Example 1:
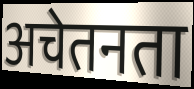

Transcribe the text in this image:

अचेतनता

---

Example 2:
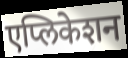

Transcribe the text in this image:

एप्लिकेशन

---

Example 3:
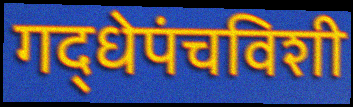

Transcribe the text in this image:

गद्धेपंचविशी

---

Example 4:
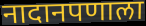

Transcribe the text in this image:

नादानपणाला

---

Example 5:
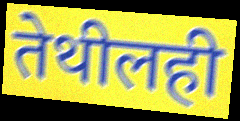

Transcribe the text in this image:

तेथीलही